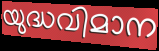
യുദ്ധവിമാന